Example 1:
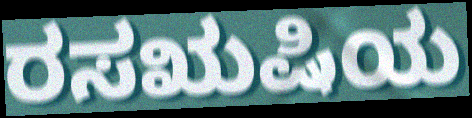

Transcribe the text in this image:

ರಸಋಷಿಯ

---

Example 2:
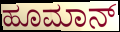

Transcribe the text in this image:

ಹೂಮಾನ್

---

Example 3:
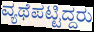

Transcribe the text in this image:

ವ್ಯಥೆಪಟ್ಟಿದ್ದರು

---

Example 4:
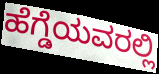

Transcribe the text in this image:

ಹೆಗ್ಡೆಯವರಲ್ಲಿ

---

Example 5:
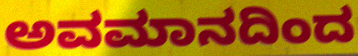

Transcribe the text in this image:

ಅವಮಾನದಿಂದ